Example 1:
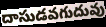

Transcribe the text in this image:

దాసుడవగుదువు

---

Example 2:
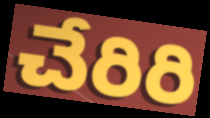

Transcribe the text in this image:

చేరిరి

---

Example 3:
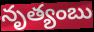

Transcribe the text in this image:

నృత్యంబు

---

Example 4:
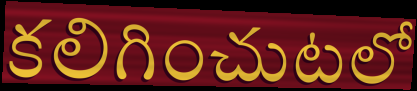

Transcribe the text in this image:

కలిగించుటలో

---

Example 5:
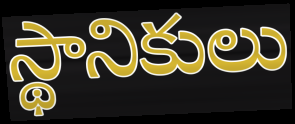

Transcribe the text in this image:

స్థానికులు